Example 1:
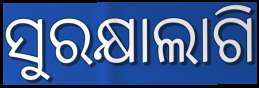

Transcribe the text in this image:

ସୁରକ୍ଷାଲାଗି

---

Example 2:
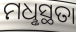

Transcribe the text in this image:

ମଧୢସ୍ଥତା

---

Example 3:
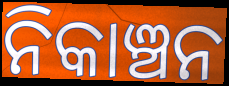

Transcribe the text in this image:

ନିକାଞ୍ଚନ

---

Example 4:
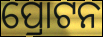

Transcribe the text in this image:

ପ୍ରୋଟନ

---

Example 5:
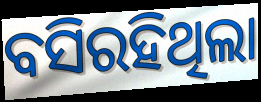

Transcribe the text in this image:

ବସିରହିଥିଲା